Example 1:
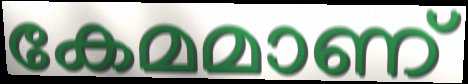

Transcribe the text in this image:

കേമമാണ്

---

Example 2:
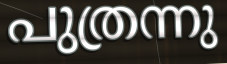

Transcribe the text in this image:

പുത്രന്നു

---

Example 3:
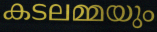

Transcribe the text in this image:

കടലമ്മയും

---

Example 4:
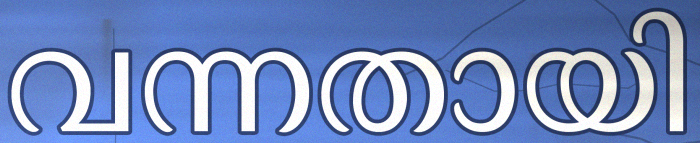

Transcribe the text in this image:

വന്നതായി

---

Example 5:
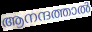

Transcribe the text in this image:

ആനന്ദത്താൽ